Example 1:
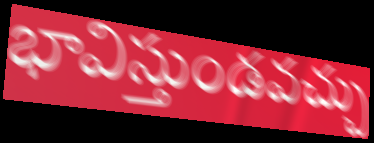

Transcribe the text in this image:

భావిస్తుండవచ్చు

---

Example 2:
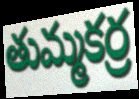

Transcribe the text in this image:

తుమ్మకర్ర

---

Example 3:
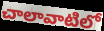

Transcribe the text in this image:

చాలావాటిలో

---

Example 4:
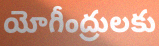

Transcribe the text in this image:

యోగీంద్రులకు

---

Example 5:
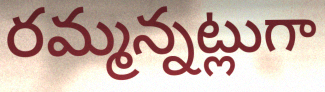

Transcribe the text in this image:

రమ్మన్నట్లుగా